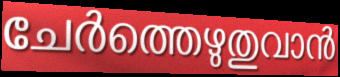
ചേർത്തെഴുതുവാൻ